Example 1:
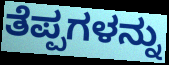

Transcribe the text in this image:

ತೆಪ್ಪಗಳನ್ನು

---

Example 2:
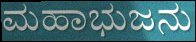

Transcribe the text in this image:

ಮಹಾಭುಜನು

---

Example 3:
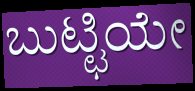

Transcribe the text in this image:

ಬುಟ್ಟಿಯೇ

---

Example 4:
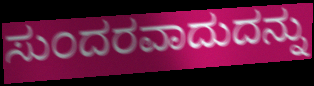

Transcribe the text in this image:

ಸುಂದರವಾದುದನ್ನು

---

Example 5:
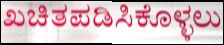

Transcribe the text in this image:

ಖಚಿತಪಡಿಸಿಕೊಳ್ಳಲು